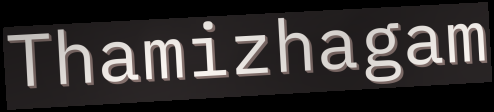
Thamizhagam